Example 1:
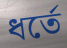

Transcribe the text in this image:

ধর্তে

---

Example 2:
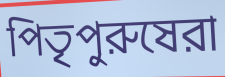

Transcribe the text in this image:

পিতৃপুরুষেরা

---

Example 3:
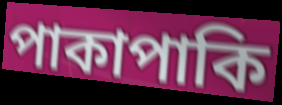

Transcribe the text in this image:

পাকাপাকি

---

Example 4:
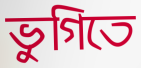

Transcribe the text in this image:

ভুগিতে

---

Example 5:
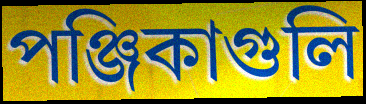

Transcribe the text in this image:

পঞ্জিকাগুলি